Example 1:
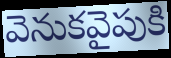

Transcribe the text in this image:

వెనుకవైపుకి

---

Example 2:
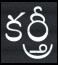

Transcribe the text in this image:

కర్త్రీ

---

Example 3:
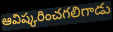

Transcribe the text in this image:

ఆవిష్కరించగలిగాడు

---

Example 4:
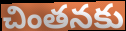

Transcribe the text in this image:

చింతనకు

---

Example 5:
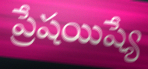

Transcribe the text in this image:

ప్రేషయిష్యే